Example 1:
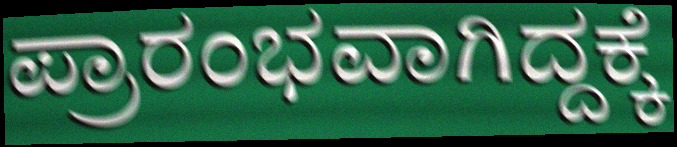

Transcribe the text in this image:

ಪ್ರಾರಂಭವಾಗಿದ್ದಕ್ಕೆ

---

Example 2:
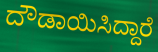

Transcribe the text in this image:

ದೌಡಾಯಿಸಿದ್ದಾರೆ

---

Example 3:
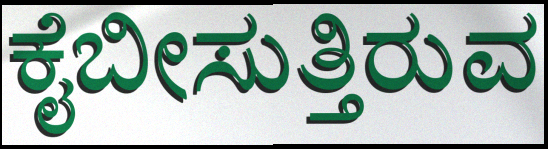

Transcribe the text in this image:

ಕೈಬೀಸುತ್ತಿರುವ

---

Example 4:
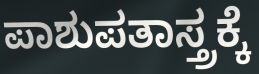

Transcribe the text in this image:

ಪಾಶುಪತಾಸ್ತ್ರಕ್ಕೆ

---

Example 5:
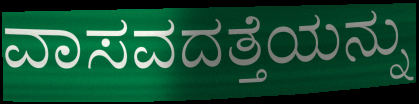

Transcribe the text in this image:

ವಾಸವದತ್ತೆಯನ್ನು